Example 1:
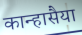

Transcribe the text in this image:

कान्हासैया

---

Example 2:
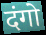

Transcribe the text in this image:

दंगो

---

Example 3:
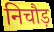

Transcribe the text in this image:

निचौड़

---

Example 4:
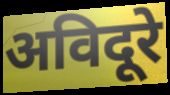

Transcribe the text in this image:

अविदूरे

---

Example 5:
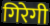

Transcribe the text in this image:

गिरेगी